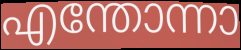
എന്തോന്നാ